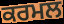
ਕਰਮਲ